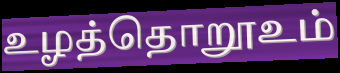
உழத்தொறூஉம்